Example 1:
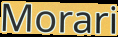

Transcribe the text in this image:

Morari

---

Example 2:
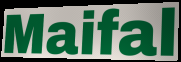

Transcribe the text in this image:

Maifal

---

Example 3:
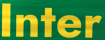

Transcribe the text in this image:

Inter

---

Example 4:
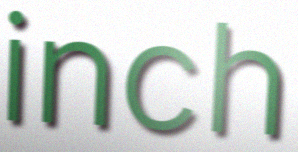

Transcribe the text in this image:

inch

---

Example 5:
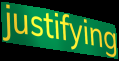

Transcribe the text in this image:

justifying